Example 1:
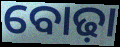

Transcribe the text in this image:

ବୋଢ଼ା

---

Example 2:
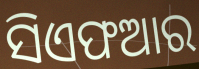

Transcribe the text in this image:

ସିଏଫଆର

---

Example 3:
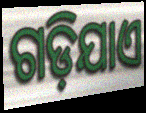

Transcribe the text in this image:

ଗଡ଼ିଯାଏ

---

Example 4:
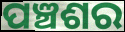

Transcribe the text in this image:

ପଞ୍ଚଶର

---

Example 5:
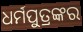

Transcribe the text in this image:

ଧର୍ମପୁତ୍ରଙ୍କର